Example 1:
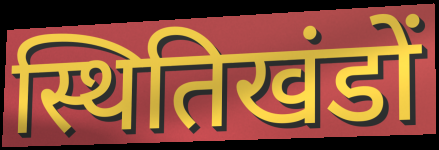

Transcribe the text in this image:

स्थितिखंडों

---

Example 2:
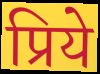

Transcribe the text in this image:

प्रिये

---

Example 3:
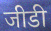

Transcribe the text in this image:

जीडी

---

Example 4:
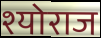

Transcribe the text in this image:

श्योराज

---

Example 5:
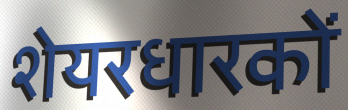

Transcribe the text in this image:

शेयरधारकों